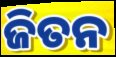
ଜିତନ